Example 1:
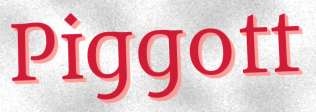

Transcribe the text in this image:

Piggott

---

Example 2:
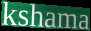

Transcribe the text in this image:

kshama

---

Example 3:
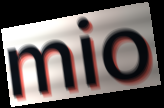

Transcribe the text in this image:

mio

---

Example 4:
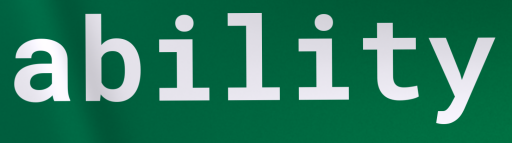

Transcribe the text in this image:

ability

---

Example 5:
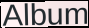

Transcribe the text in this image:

Album